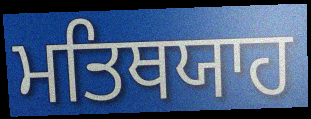
ਮਤਿਥਯਾਹ